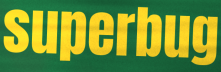
superbug